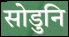
सोडुनि